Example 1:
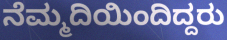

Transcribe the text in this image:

ನೆಮ್ಮದಿಯಿಂದಿದ್ದರು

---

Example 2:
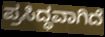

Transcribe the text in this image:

ಪ್ರಸಿದ್ಧವಾಗಿದೆ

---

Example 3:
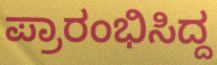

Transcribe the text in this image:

ಪ್ರಾರಂಭಿಸಿದ್ದ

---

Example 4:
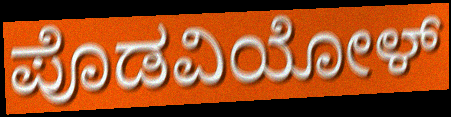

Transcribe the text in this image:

ಪೊಡವಿಯೋಳ್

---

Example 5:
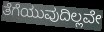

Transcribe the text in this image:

ತೆಗೆಯುವುದಿಲ್ಲವೇ